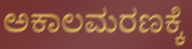
ಅಕಾಲಮರಣಕ್ಕೆ